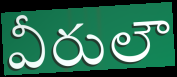
వీరులౌ